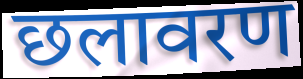
छलावरण